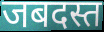
जबदस्त